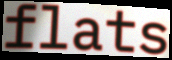
flats